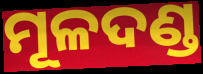
ମୂଳଦଣ୍ଡ